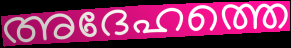
അദേഹത്തെ